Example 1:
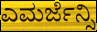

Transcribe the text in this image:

ಎಮರ್ಜೆನ್ಸಿ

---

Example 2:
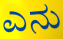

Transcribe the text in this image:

ಎನು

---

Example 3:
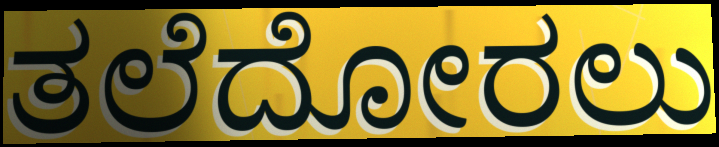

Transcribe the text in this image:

ತಲೆದೋರಲು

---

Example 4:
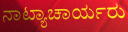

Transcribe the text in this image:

ನಾಟ್ಯಾಚಾರ್ಯರು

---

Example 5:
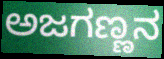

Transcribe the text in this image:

ಅಜಗಣ್ಣನ